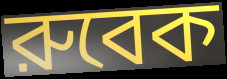
রুবেক